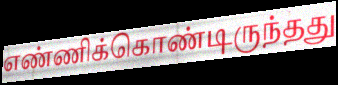
எண்ணிக்கொண்டிருந்தது